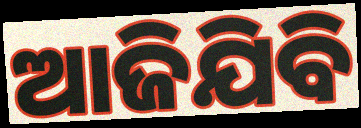
ଆଜିଯିବି